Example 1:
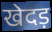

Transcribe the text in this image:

खेदड़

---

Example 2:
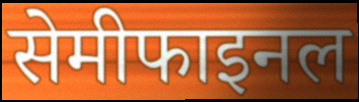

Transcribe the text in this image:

सेमीफाइनल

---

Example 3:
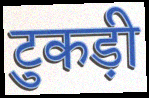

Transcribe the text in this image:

टुकड़ी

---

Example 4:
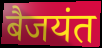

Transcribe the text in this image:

बैजयंत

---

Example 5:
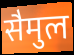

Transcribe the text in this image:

सैमुल